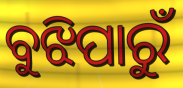
ବୁଝିପାରୁଁ